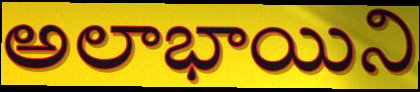
అలాభాయిని